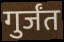
गुर्जंत